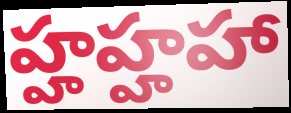
హ్హహ్హహా